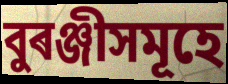
বুৰঞ্জীসমূহে